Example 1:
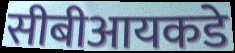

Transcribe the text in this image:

सीबीआयकडे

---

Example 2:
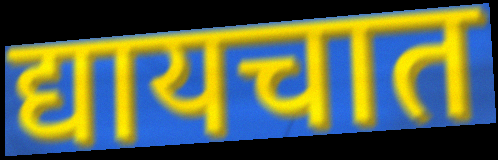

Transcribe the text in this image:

द्यायचात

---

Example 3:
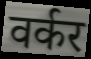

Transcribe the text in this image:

वर्कर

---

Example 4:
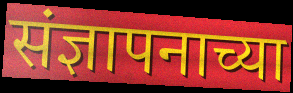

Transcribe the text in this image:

संज्ञापनाच्या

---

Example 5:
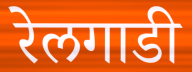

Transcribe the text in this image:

रेलगाडी